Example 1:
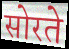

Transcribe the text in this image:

सोरते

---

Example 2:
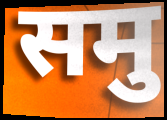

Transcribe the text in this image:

समु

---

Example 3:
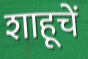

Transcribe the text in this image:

शाहूचें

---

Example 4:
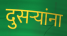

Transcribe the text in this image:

दुसर्‍यांना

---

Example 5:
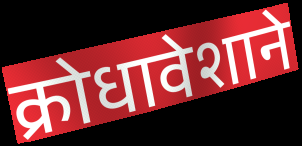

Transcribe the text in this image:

क्रोधावेशाने